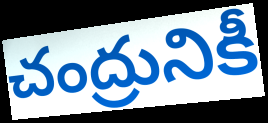
చంద్రునికీ